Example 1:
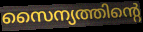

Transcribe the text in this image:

സൈന്യത്തിന്റെ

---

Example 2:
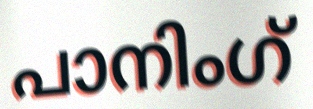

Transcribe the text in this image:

പാനിംഗ്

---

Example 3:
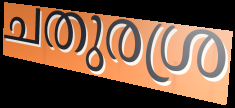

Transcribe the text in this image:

ചതുരശ്ര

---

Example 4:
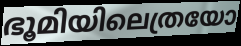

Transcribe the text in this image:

ഭൂമിയിലെത്രയോ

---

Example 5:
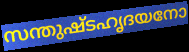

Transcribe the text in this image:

സന്തുഷ്ടഹൃദയനോ